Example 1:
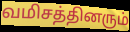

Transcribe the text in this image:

வமிசத்தினரும்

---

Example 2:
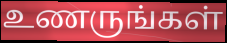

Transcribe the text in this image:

உணருங்கள்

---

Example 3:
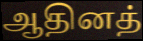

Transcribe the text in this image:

ஆதினத்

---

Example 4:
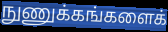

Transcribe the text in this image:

நுணுக்கங்களைக்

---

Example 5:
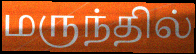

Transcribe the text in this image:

மருந்தில்